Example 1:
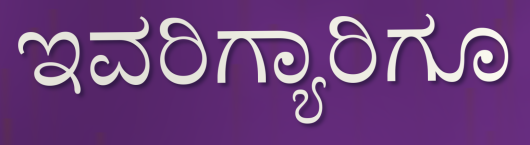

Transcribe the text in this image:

ಇವರಿಗ್ಯಾರಿಗೂ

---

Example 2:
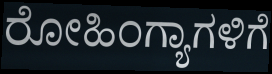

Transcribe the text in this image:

ರೋಹಿಂಗ್ಯಾಗಳಿಗೆ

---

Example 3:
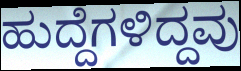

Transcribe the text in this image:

ಹುದ್ದೆಗಳಿದ್ದವು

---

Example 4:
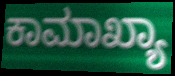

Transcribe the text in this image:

ಕಾಮಾಖ್ಯಾ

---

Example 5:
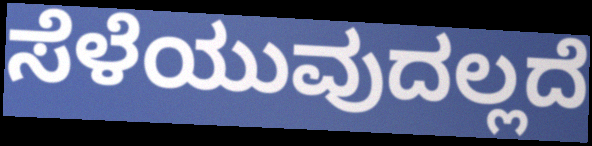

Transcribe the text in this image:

ಸೆಳೆಯುವುದಲ್ಲದೆ